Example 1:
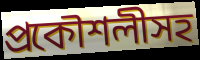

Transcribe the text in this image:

প্রকৌশলীসহ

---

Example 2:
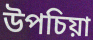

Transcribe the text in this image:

উপচিয়া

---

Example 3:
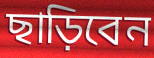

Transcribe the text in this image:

ছাড়িবেন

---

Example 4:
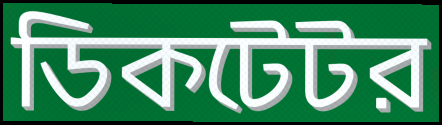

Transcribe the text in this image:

ডিকটেটর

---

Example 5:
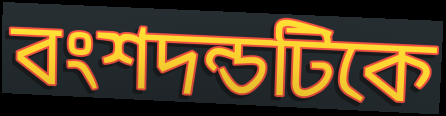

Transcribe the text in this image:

বংশদন্ডটিকে